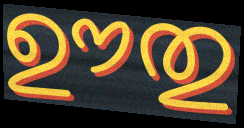
ഊതു